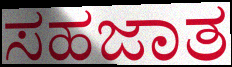
ಸಹಜಾತ